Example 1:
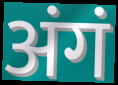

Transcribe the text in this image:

अंगं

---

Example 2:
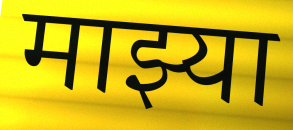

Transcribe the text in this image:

माझ्या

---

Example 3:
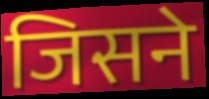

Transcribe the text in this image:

जिसने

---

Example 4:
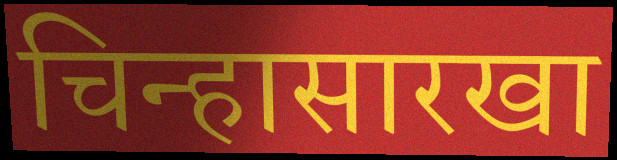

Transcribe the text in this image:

चिन्हासारखा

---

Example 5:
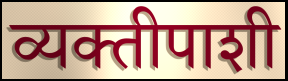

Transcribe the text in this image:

व्यक्तीपाशी